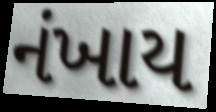
નંખાય